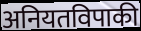
अनियतविपाकी